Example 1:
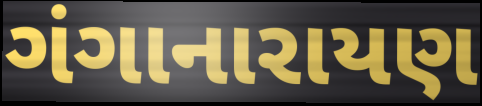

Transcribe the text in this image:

ગંગાનારાયણ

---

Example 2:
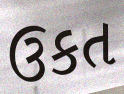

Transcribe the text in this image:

ઉકત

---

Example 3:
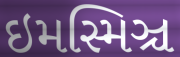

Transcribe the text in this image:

ઇમસ્મિઞ્ચ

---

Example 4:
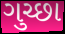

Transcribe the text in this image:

ગુચ્છા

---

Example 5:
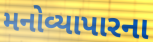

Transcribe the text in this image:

મનોવ્યાપારના